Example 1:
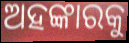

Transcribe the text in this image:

ଅହଙ୍କାରକୁ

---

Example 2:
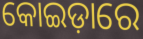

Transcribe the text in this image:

କୋଇଡ଼ାରେ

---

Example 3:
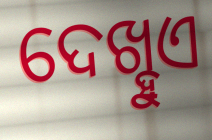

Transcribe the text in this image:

ଦେଖ୍ହୁଏ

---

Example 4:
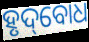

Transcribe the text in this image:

ହୃଦ୍‌ବୋଧ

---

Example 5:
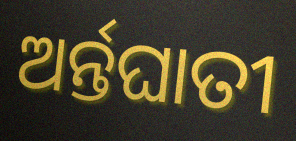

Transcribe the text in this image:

ଅର୍ନ୍ତଘାତୀ